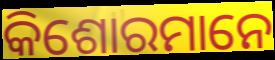
କିଶୋରମାନେ